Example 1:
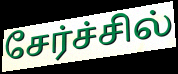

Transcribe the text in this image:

சேர்ச்சில்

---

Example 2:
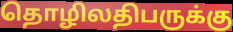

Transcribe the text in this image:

தொழிலதிபருக்கு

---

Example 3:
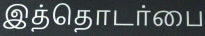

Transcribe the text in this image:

இத்தொடர்பை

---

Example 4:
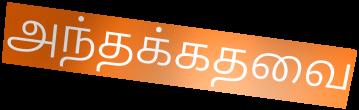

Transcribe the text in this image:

அந்தக்கதவை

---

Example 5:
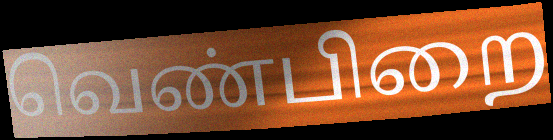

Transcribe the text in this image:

வெண்பிறை